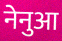
नेनुआ